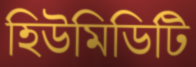
হিউমিডিটি